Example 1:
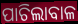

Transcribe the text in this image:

ପାଚିଲାବାଳ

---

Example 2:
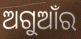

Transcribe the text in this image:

ଅଗୁଆଁର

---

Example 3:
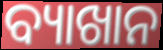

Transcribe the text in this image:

ବ୍ୟାଖାନ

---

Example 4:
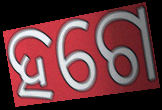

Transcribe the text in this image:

ହଗେ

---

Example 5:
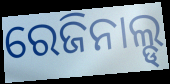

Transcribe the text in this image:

ରେଜିନାଲ୍ଡ୍